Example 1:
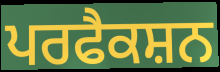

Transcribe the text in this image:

ਪਰਫੈਕਸ਼ਨ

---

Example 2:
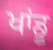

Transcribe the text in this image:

ਖਾਂਡੂ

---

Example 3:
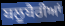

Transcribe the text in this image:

ਬਲੂਬੈਰੀਆਂ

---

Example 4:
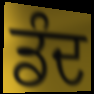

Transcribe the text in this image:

ਡੰਦ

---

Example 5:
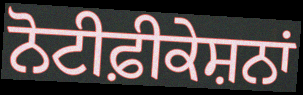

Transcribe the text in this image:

ਨੋਟੀਫ਼ੀਕੇਸ਼ਨਾਂ